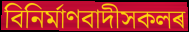
বিনিৰ্মাণবাদীসকলৰ